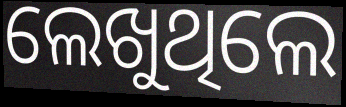
ଲେଖୁଥିଲେ